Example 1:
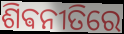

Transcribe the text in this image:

ଶିଵନୀତିରେ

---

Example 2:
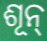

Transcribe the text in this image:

ଶୂନ୍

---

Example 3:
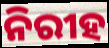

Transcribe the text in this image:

ନିରୀହ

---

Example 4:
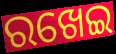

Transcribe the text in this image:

ରଖେଇ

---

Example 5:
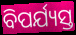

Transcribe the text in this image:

ବିପର୍ଯ୍ୟସ୍ତ